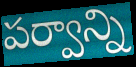
పర్వాన్ని